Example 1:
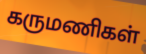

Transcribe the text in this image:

கருமணிகள்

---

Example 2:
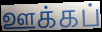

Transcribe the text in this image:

ஊக்கப்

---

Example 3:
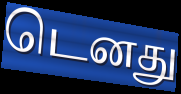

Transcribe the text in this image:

டெனது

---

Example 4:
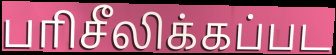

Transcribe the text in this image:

பரிசீலிக்கப்பட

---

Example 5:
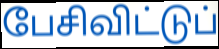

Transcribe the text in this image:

பேசிவிட்டுப்